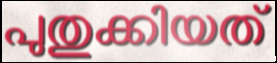
പുതുക്കിയത്